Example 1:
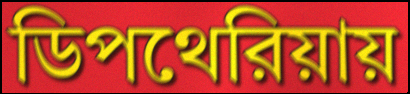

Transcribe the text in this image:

ডিপথেরিয়ায়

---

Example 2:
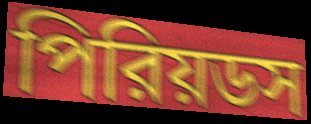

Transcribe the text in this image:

পিরিয়ডস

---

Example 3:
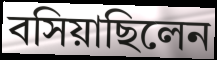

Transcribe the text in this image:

বসিয়াছিলেন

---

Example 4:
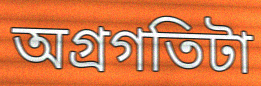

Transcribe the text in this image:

অগ্রগতিটা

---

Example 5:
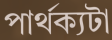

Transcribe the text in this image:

পার্থক্যটা